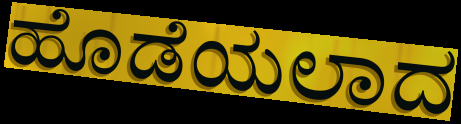
ಹೊಡೆಯಲಾದ